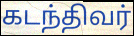
கடந்திவர்